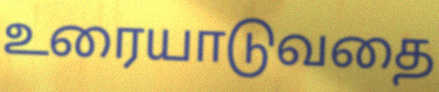
உரையாடுவதை